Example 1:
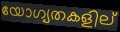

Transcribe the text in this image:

യോഗ്യതകളില്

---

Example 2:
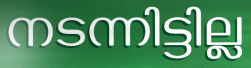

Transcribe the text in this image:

നടന്നിട്ടില്ല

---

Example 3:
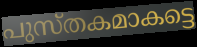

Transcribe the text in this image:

പുസ്തകമാകട്ടെ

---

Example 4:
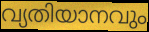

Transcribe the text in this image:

വ്യതിയാനവും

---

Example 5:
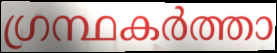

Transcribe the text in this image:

ഗ്രന്ഥകർത്താ